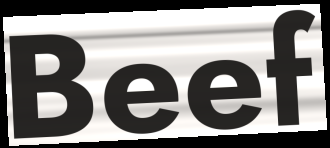
Beef